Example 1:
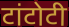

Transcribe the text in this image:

टांटोटी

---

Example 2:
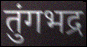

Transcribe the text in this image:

तुंगभद्र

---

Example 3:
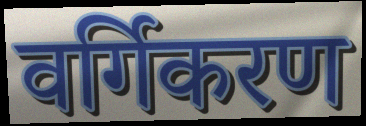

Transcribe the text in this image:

वर्गिकरण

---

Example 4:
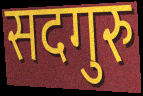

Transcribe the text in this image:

सदगुरु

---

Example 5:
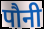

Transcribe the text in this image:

पौनी